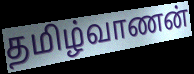
தமிழ்வாணன்